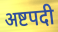
अष्टपदी